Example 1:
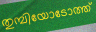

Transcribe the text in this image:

തുമ്പിയോടോത്ത്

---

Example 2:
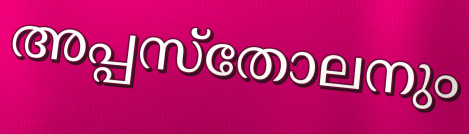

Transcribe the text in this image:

അപ്പസ്തോലനും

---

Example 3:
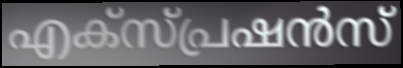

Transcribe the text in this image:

എക്സ്പ്രഷൻസ്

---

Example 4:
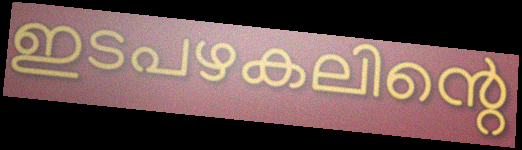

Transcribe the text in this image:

ഇടപഴകലിന്റെ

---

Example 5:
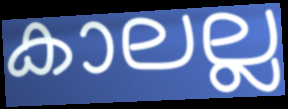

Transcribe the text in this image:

കാലല്ല